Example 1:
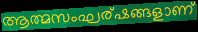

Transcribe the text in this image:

ആത്മസംഘര്ഷങ്ങളാണ്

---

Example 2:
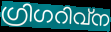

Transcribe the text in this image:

ഗ്രിഗറിവ്ന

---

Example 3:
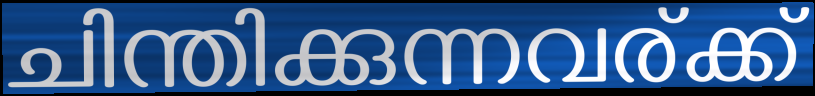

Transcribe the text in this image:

ചിന്തിക്കുന്നവര്ക്ക്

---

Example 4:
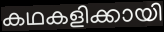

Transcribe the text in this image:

കഥകളിക്കായി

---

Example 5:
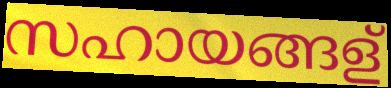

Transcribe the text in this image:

സഹായങ്ങള്